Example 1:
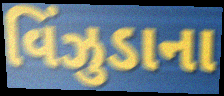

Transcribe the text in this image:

વિંઝુડાના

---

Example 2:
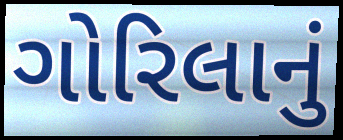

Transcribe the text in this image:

ગોરિલાનું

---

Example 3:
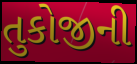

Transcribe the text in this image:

તુકોજીની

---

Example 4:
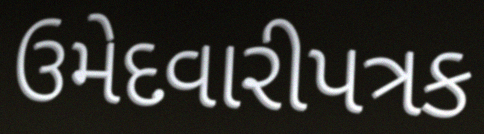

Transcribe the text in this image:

ઉમેદવારીપત્રક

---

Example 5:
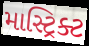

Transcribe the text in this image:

માસ્ટ્રિક્ટ